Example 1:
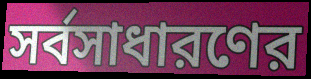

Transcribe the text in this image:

সর্বসাধারণের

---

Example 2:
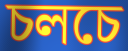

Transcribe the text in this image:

চলচে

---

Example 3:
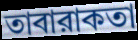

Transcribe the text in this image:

তাবারাকতা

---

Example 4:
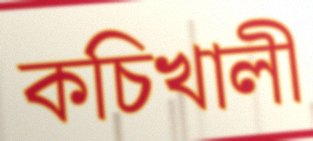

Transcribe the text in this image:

কচিখালী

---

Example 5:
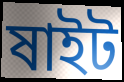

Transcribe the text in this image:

ষাইট